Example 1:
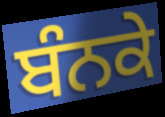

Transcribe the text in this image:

ਬੰਨਕੇ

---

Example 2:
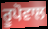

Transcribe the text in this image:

ਰੂਪੋਵਾਲ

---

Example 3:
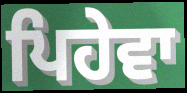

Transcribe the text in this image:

ਪਿਹੇਵਾ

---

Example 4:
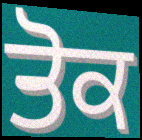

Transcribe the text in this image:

ਤੋਕ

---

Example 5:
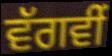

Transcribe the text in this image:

ਵੱਗਵੀਂ